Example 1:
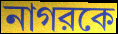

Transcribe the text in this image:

নাগরকে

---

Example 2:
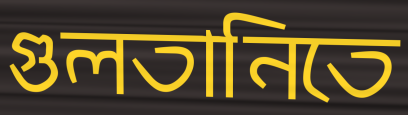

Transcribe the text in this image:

গুলতানিতে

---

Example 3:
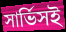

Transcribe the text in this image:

সার্ভিসই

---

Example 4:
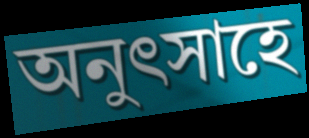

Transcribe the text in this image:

অনুৎসাহে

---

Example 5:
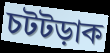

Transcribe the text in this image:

চটটড়াক